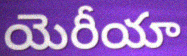
యెరీయా